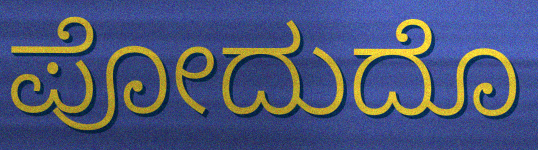
ಪೋದುದೊ